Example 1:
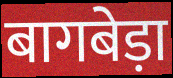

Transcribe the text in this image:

बागबेड़ा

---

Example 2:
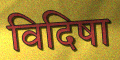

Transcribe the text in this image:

विदिषा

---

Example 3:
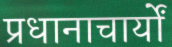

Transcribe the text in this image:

प्रधानाचार्यों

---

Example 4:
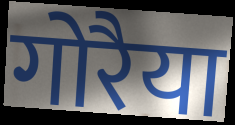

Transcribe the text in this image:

गोरैया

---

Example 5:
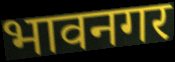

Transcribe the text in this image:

भावनगर